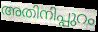
അതിനിപ്പുറം